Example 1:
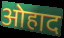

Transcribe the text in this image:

ओहाद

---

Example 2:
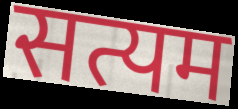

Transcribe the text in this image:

सत्यम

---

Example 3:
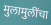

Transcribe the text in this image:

मुलामुलींचा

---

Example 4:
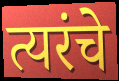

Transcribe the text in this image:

त्यरंचे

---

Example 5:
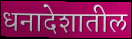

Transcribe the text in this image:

धनादेशातील